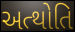
અત્થોતિ